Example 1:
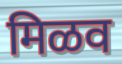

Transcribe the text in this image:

मिळव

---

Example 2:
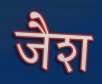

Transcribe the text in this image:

जैश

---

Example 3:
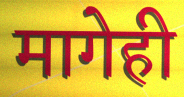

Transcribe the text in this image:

मागेही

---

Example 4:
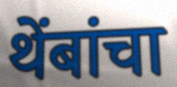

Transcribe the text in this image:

थेंबांचा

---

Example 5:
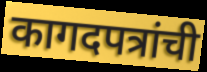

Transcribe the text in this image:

कागदपत्रांची